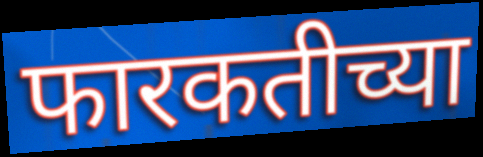
फारकतीच्या